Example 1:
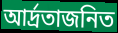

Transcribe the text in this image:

আর্দ্রতাজনিত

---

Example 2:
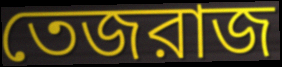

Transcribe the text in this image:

তেজরাজ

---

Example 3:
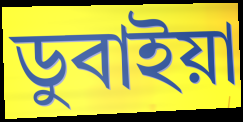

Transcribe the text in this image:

ডুবাইয়া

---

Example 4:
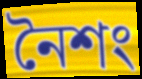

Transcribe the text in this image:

নৈশং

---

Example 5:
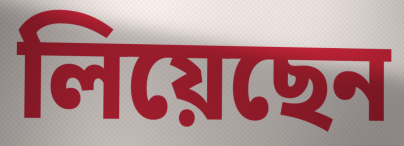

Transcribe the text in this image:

লিয়েছেন